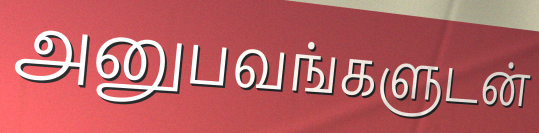
அனுபவங்களுடன்